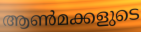
ആൺമക്കളുടെ